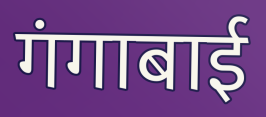
गंगाबाई